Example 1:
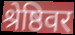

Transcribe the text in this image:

श्रेष्ठिवर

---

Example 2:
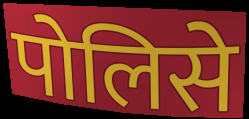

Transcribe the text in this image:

पोलिसे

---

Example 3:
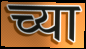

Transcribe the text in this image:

च्या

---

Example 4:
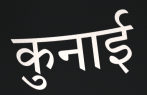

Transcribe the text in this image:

कुनाई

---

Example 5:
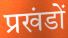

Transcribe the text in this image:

प्रखंडों